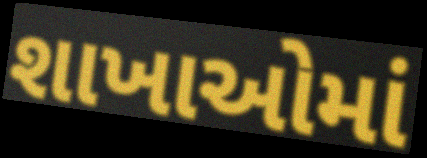
શાખાઓમાં